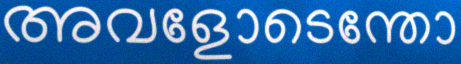
അവളോടെന്തോ